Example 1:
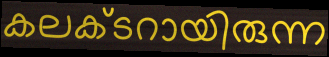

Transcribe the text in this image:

കലക്ടറായിരുന്ന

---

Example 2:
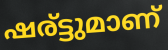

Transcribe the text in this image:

ഷര്ട്ടുമാണ്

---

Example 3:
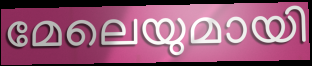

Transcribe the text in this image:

മേലെയുമായി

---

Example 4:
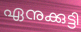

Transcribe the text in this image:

ഏനുക്കുട്ടി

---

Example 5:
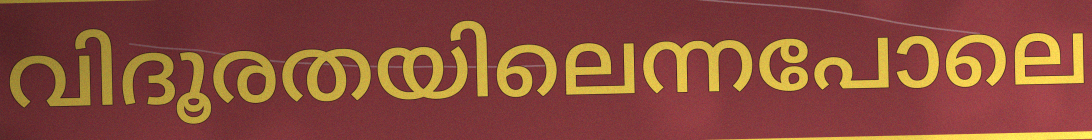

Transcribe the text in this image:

വിദൂരതയിലെന്നപോലെ